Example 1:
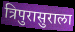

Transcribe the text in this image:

त्रिपुरासुराला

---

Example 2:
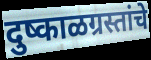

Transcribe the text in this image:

दुष्काळग्रस्तांचे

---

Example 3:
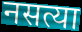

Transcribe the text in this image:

नसत्या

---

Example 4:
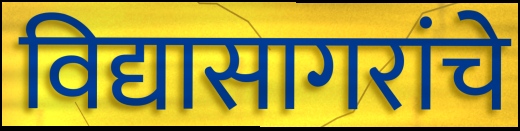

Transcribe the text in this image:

विद्यासागरांचे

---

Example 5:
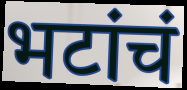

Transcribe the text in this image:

भटांचं